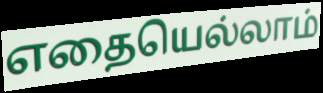
எதையெல்லாம்